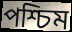
পশ্চিম